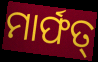
ମାର୍ଫତ୍